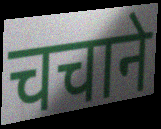
चचाने